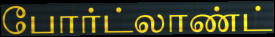
போர்ட்லாண்ட்